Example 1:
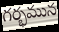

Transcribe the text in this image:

గర్భమున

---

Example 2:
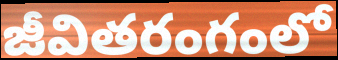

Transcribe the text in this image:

జీవితరంగంలో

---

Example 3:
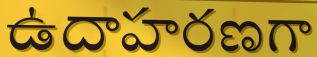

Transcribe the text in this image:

ఉదాహరణగా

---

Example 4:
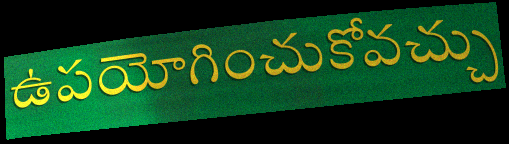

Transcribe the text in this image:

ఉపయోగించుకోవచ్చు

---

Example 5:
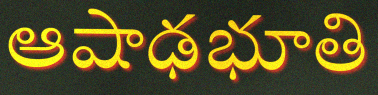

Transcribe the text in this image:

ఆషాఢభూతి